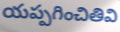
యప్పగించితివి